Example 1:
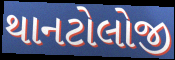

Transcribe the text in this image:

થાનટોલોજી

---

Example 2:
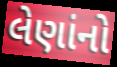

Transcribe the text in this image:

લેણાંનો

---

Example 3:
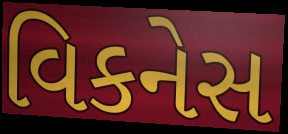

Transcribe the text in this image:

વિકનેસ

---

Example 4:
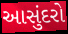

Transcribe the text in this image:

આસુંદરો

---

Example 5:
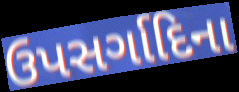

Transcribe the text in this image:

ઉપસર્ગાદિના